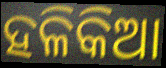
ହଳିକିଆ